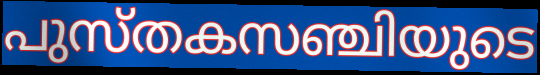
പുസ്തകസഞ്ചിയുടെ